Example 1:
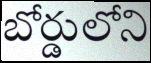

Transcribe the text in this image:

బోర్డులోని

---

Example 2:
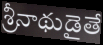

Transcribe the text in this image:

శ్రీనాథుడైతే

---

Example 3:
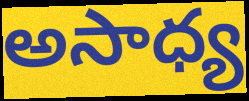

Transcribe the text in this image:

అసాధ్య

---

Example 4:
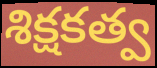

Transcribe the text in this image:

శిక్షకత్వ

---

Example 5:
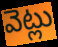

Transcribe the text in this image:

వెట్లు